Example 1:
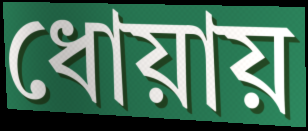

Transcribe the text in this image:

ধোয়ায়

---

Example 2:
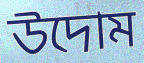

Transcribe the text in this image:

উদোম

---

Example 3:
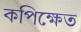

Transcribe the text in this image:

কপিক্ষেত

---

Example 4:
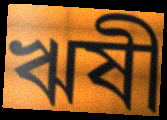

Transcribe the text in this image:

ঋষী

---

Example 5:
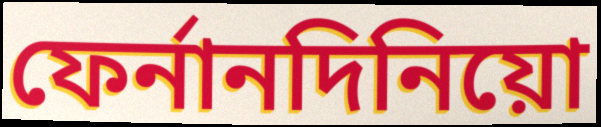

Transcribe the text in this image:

ফের্নানদিনিয়ো